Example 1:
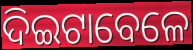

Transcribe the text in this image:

ଦିଇଟାବେଳେ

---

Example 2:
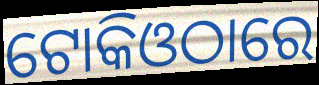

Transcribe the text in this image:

ଟୋକିଓଠାରେ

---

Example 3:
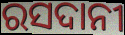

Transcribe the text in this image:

ରସଦାନୀ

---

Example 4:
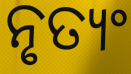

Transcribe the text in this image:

ନୃତ୍ୟଂ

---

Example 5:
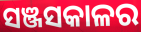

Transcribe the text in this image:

ସଞ୍ଜସକାଳର